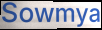
Sowmya